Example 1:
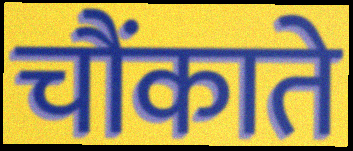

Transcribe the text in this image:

चौंकाते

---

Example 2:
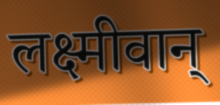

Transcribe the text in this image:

लक्ष्मीवान्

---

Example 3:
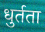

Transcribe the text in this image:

धुर्तता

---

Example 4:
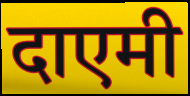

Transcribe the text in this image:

दाएमी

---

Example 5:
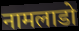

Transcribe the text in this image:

नामलाडो